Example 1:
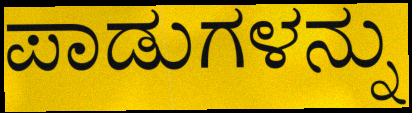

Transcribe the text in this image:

ಪಾಡುಗಳನ್ನು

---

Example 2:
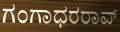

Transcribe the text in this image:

ಗಂಗಾಧರರಾವ್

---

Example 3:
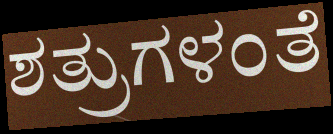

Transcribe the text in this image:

ಶತ್ರುಗಳಂತೆ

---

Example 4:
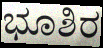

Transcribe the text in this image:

ಭೂಶಿರ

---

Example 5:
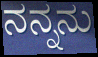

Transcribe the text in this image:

ನನ್ನನು